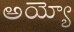
అయ్యో